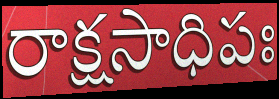
రాక్షసాధిపః